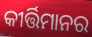
କୀର୍ତ୍ତିମାନର